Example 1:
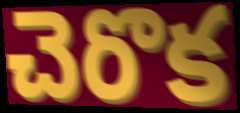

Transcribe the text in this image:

చెరొక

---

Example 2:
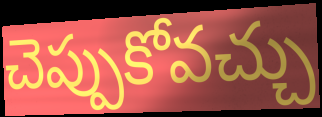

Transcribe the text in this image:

చెప్పుకోవచ్చు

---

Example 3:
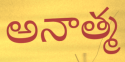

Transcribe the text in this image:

అనాత్మ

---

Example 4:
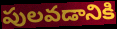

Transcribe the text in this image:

పులవడానికి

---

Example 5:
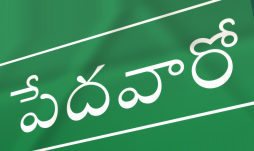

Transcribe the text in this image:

పేదవారో